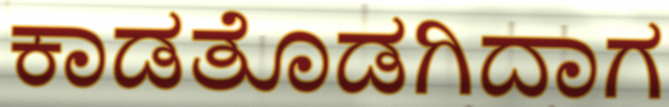
ಕಾಡತೊಡಗಿದಾಗ